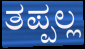
ತಪ್ಪಲ್ಲ